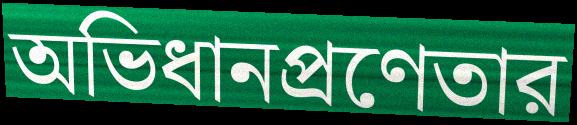
অভিধানপ্রণেতার